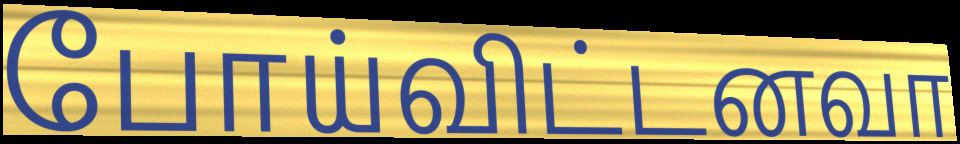
போய்விட்டனவா